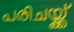
പരിചയ്ക്ക്